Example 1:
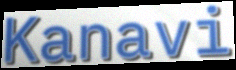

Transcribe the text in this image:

Kanavi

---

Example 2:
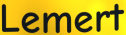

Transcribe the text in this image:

Lemert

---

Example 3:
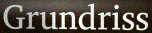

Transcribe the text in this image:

Grundriss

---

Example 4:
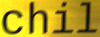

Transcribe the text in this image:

chil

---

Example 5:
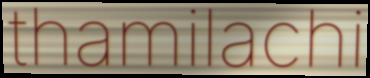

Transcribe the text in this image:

thamilachi